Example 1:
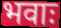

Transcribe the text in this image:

भवाः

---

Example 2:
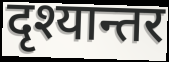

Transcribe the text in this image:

दृश्यान्तर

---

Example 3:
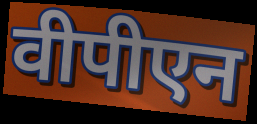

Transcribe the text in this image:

वीपीएन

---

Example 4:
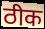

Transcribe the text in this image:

ठीक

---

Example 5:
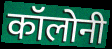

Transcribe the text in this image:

कॉलोनी